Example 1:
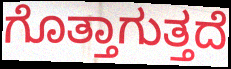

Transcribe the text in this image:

ಗೊತ್ತಾಗುತ್ತದೆ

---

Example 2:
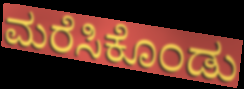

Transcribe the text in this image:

ಮರೆಸಿಕೊಂಡು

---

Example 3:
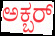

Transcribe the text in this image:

ಅಕ್ಬರ್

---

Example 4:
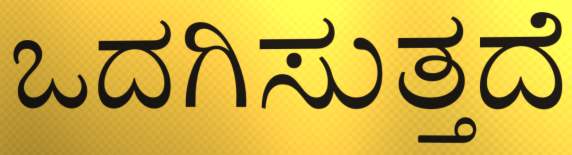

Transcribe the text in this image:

ಒದಗಿಸುತ್ತದೆ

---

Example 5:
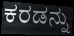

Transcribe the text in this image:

ಕರಡನ್ನು